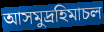
আসমুদ্রহিমাচল